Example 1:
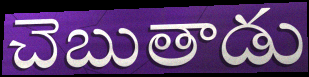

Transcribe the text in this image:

చెబుతాడు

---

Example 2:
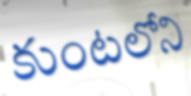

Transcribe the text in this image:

కుంటలోని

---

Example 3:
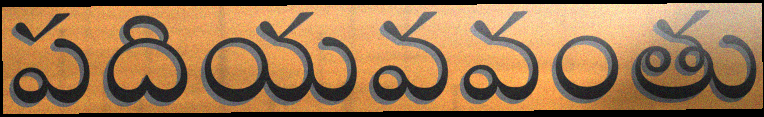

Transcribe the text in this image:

పదియవవంతు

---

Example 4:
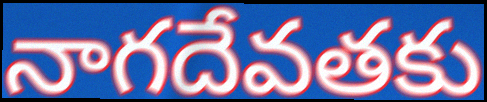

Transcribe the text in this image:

నాగదేవతకు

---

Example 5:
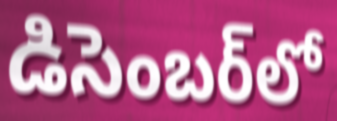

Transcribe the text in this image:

డిసెంబర్‌లో